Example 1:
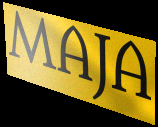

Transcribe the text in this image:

MAJA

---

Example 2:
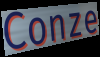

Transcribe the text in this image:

Conze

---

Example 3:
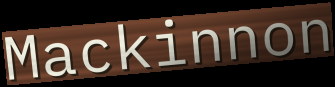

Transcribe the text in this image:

Mackinnon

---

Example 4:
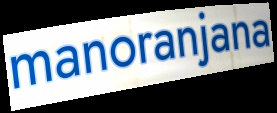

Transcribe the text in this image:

manoranjana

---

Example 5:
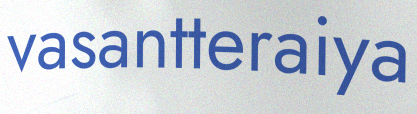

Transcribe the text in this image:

vasantteraiya